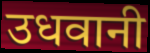
उधवानी